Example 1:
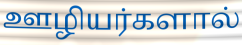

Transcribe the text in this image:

ஊழியர்களால்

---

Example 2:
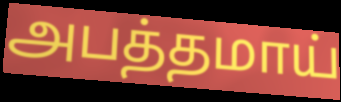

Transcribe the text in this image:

அபத்தமாய்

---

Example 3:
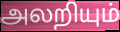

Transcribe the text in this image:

அலறியும்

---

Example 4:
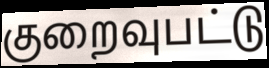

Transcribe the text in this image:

குறைவுபட்டு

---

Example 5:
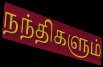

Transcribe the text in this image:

நந்திகளும்